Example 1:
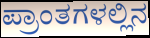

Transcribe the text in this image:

ಪ್ರಾಂತಗಳಲ್ಲಿನ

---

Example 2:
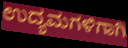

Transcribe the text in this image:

ಉದ್ಯಮಗಳಿಗಾಗಿ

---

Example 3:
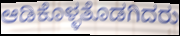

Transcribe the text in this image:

ಆಡಿಕೊಳ್ಳತೊಡಗಿದರು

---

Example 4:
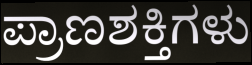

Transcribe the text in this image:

ಪ್ರಾಣಶಕ್ತಿಗಳು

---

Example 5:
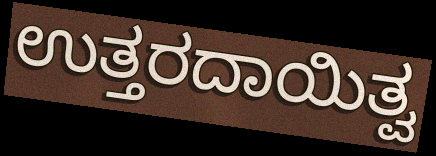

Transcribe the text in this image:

ಉತ್ತರದಾಯಿತ್ವ